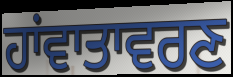
ਹਾਂਵਾਤਾਵਰਣ